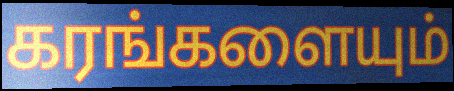
கரங்களையும்